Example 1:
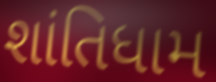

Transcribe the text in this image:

શાંતિધામ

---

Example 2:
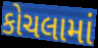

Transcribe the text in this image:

કોચલામાં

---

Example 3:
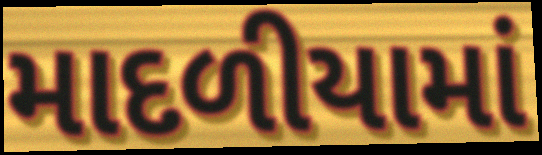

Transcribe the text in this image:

માદળીયામાં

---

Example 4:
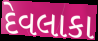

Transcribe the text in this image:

દેવલાકા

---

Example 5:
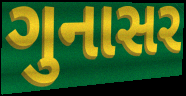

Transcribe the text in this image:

ગુનાસર